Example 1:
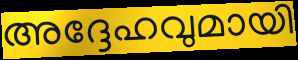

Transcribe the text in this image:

അദ്ദേഹവുമായി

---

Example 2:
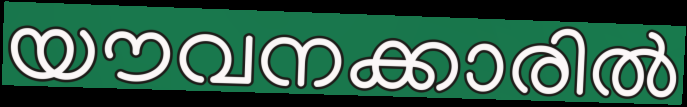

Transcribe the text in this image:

യൗവനക്കാരിൽ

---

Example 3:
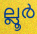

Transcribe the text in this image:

ല്ലൂർ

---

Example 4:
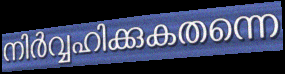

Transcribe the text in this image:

നിർവ്വഹിക്കുകതന്നെ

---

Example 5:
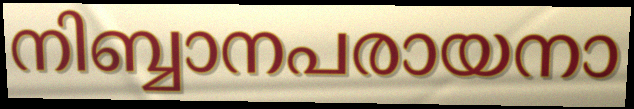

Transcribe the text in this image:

നിബ്ബാനപരായനാ